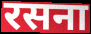
रसना